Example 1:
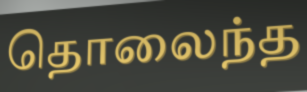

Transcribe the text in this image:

தொலைந்த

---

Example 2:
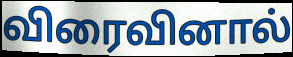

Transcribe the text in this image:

விரைவினால்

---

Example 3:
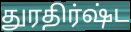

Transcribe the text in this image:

துரதிர்ஷ்ட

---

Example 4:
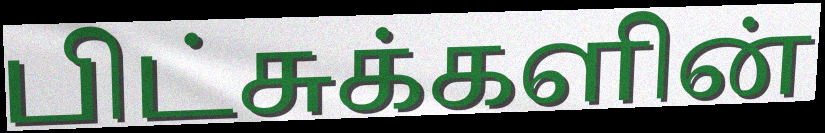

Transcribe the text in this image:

பிட்சுக்களின்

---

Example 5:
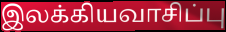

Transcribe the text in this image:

இலக்கியவாசிப்பு